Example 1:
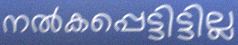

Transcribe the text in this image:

നൽകപ്പെട്ടിട്ടില്ല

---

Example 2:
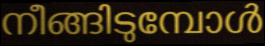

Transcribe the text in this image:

നീങ്ങിടുമ്പോൾ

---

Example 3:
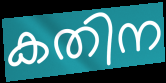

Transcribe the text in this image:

കതിന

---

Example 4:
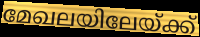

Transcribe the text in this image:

മേഖലയിലേയ്ക്ക്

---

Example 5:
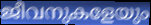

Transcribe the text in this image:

ജീവനുകളേയും